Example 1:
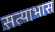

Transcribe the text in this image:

सत्याभास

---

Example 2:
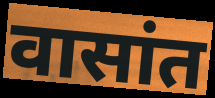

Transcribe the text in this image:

वासांत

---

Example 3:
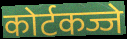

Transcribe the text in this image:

कोर्टकज्जे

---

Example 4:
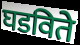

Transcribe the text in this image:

घडविते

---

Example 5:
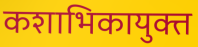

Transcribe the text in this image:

कशाभिकायुक्त